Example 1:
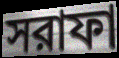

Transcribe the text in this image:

সরাফা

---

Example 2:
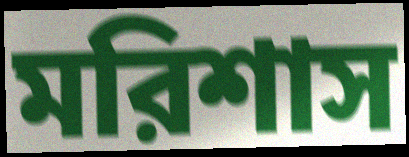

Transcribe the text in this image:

মরিশাস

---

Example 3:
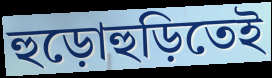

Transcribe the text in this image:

হুড়োহুড়িতেই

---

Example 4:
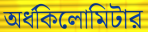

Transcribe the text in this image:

অর্ধকিলোমিটার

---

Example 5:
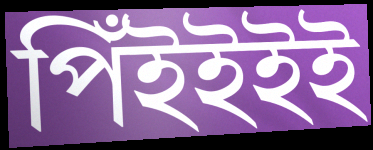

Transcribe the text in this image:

পিঁইইইই